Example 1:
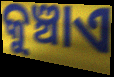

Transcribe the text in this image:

କୁଞ୍ଚାଏ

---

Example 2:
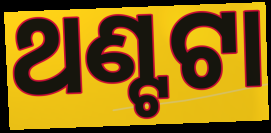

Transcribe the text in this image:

ଥଣ୍ଟଟା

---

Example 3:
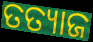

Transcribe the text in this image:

ତତ୍ୟାଜ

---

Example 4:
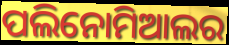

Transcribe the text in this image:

ପଲିନୋମିଆଲର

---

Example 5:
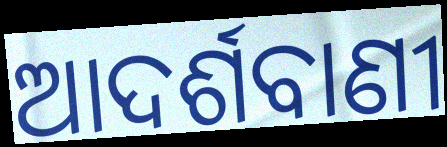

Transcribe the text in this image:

ଆଦର୍ଶବାଣୀ